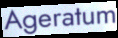
Ageratum